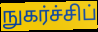
நுகர்ச்சிப்